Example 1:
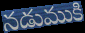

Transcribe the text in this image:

నడుముకి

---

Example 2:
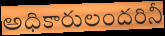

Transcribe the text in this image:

అధికారులందరినీ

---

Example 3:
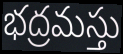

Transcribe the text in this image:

భద్రమస్తు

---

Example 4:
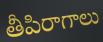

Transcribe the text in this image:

తీపిరాగాలు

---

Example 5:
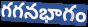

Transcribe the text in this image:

గగనభాగం